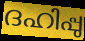
ദഹിപ്പു